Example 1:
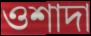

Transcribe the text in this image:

ওশাদা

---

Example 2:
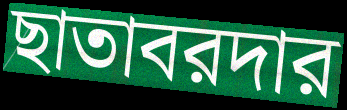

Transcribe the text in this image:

ছাতাবরদার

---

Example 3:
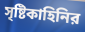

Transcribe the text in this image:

সৃষ্টিকাহিনির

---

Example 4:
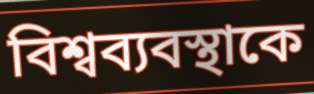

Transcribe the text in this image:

বিশ্বব্যবস্থাকে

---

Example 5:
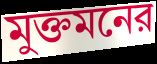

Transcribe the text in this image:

মুক্তমনের